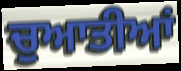
ਚੁਆਤੀਆਂ